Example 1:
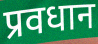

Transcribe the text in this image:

प्रवधान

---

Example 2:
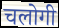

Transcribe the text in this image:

चलोगी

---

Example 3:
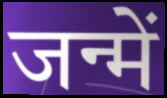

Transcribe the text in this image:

जन्में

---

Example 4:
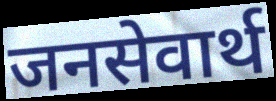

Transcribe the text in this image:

जनसेवार्थ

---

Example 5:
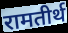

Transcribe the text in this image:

रामतीर्थ